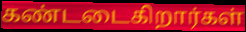
கண்டடைகிறார்கள்